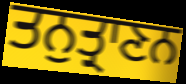
ਤਨੁਤ੍ਰਾਣਨ